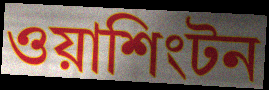
ওয়াশিংটন